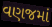
વણજમાં